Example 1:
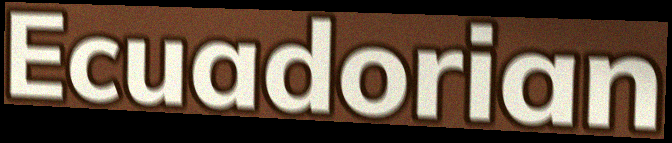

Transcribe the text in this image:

Ecuadorian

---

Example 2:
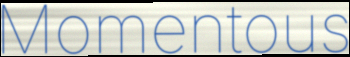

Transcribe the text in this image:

Momentous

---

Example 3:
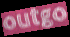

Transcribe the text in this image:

outgo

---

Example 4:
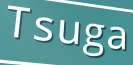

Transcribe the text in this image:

Tsuga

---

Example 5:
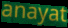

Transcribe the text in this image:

anayat